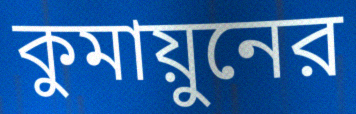
কুমায়ুনের